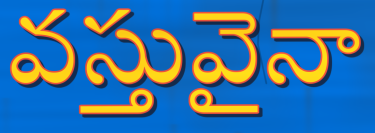
వస్తువైనా